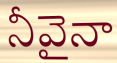
నీవైనా